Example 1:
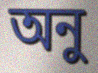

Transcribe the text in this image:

অনু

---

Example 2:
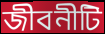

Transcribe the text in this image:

জীবনীটি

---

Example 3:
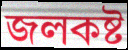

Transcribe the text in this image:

জলকষ্ট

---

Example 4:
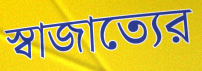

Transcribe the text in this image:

স্বাজাত্যের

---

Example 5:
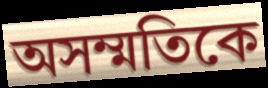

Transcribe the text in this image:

অসম্মতিকে